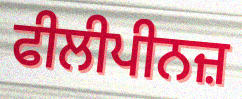
ਫੀਲੀਪੀਨਜ਼